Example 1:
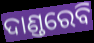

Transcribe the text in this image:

ଦାଣ୍ଡରେବି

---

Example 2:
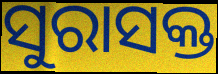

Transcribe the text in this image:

ସୁରାସକ୍ତ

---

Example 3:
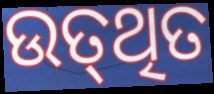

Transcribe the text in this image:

ଉତ୍‍ଥିତ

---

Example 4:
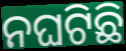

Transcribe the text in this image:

ନଘଟିଛି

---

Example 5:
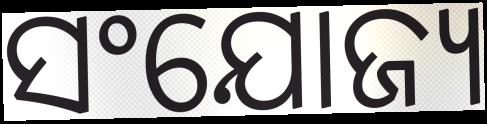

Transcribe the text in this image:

ସଂଯୋଜ୍ୟ